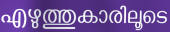
എഴുത്തുകാരിലൂടെ